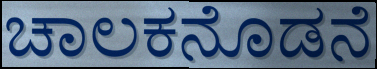
ಚಾಲಕನೊಡನೆ